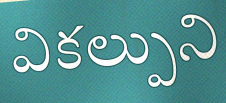
వికల్పుని